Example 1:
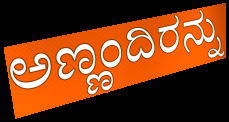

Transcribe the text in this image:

ಅಣ್ಣಂದಿರನ್ನು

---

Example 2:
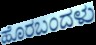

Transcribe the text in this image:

ಹೊರಬಂದಳು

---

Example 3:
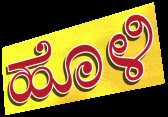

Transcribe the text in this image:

ಹೊಳಿ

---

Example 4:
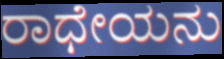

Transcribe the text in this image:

ರಾಧೇಯನು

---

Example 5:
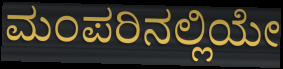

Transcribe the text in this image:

ಮಂಪರಿನಲ್ಲಿಯೇ